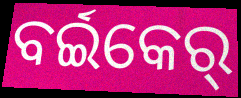
ବର୍ଇକେର୍